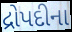
દ્રોપદીના